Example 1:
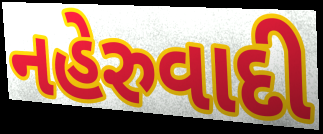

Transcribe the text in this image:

નહેરુવાદી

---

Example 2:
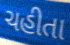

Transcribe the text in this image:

ચહીતા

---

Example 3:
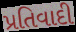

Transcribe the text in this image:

પ્રતિવાદી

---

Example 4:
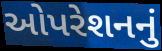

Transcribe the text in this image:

ઓપરેશનનું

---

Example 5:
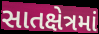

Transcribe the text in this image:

સાતક્ષેત્રમાં